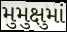
મુમુક્ષુમાં